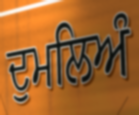
ਦੁਮਲਿਅੰ